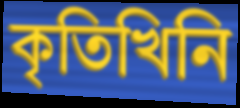
কৃতিখিনি